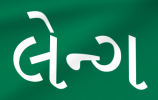
લેન્ગ